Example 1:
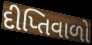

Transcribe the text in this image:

દીપ્તિવાળો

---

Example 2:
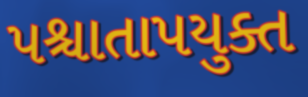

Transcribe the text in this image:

પશ્ચાતાપયુક્ત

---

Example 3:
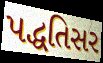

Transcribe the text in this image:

પદ્ધતિસર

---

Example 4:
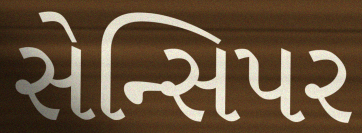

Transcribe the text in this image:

સેન્સિપર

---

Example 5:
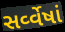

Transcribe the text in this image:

સર્વ્વેષાં